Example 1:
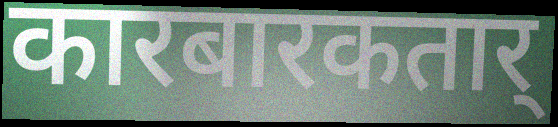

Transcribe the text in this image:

कारबारकतार्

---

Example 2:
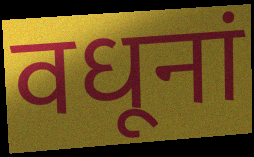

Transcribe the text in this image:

वधूनां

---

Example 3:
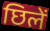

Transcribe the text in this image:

छिलें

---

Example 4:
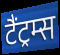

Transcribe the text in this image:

टैंट्रम्स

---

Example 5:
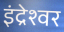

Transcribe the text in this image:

इंद्रेश्वर